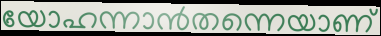
യോഹന്നാൻതന്നെയാണ്